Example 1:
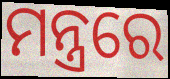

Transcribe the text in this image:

ମନ୍ତ୍ରରେ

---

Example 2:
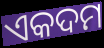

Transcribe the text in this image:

ଏକଦମ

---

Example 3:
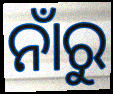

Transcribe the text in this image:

ନାଁରୁ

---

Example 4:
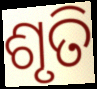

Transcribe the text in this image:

ଶୃତି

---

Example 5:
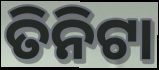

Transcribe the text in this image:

ତିନିଟା